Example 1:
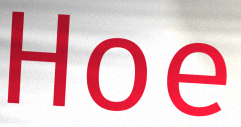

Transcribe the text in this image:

Hoe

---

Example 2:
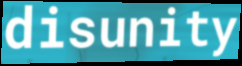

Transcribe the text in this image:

disunity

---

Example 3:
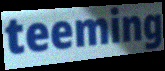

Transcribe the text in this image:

teeming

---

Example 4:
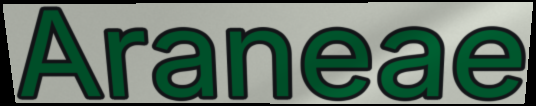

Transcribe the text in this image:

Araneae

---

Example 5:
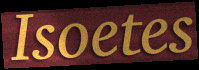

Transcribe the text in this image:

Isoetes